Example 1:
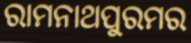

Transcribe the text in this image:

ରାମନାଥପୁରମର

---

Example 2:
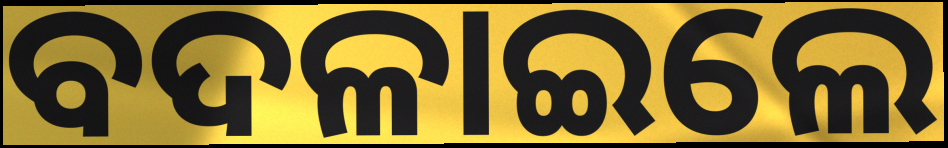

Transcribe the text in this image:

ବଦଳାଇଲେ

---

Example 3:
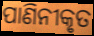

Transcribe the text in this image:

ପାଣିନୀକୃତ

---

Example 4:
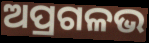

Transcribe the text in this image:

ଅପ୍ରଗଳଭ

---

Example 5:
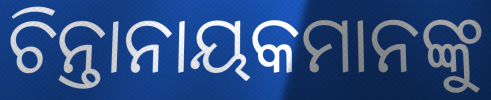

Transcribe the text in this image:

ଚିନ୍ତାନାୟକମାନଙ୍କୁ